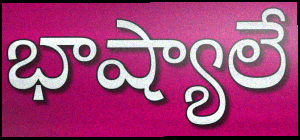
భాష్యాలే